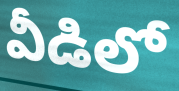
వీడిలో